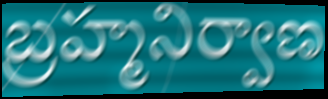
బ్రహ్మనిర్వాణ